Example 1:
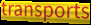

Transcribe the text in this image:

transports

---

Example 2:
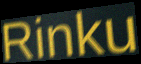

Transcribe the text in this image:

Rinku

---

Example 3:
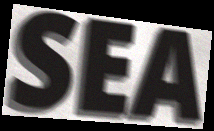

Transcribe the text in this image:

SEA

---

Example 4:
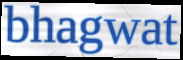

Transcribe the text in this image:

bhagwat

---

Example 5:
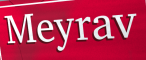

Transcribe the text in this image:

Meyrav